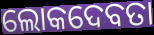
ଲୋକଦେବତା